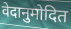
वेदानुमोदित